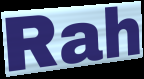
Rah